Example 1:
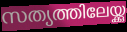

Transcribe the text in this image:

സത്യത്തിലേയ്ക്കു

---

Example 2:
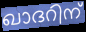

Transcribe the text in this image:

ഖാദറിന്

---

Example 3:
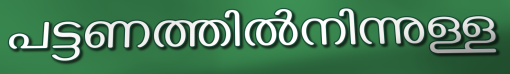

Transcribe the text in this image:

പട്ടണത്തിൽനിന്നുള്ള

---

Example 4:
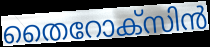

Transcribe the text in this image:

തൈറോക്സിൻ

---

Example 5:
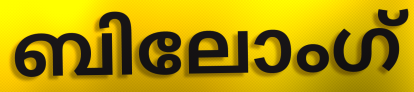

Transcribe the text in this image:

ബിലോംഗ്